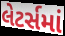
લેટર્સમાં